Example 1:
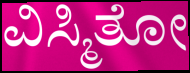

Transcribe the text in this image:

ವಿಸ್ಮಿತೋ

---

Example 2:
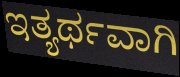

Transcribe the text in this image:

ಇತ್ಯರ್ಥವಾಗಿ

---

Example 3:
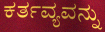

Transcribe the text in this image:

ಕರ್ತವ್ಯವನ್ನು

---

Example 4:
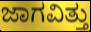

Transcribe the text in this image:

ಜಾಗವಿತ್ತು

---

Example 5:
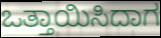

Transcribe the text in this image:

ಒತ್ತಾಯಿಸಿದಾಗ